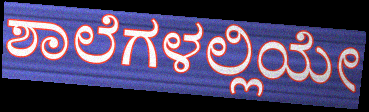
ಶಾಲೆಗಳಲ್ಲಿಯೇ